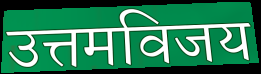
उत्तमविजय